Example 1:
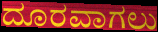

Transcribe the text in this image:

ದೂರವಾಗಲು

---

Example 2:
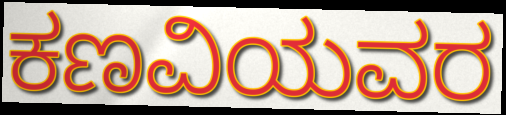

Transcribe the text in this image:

ಕಣವಿಯವರ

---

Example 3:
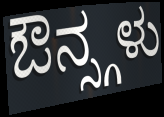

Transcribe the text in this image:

ಔನ್ಸ್ಗಳು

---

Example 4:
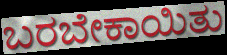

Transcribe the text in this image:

ಬರಬೇಕಾಯಿತು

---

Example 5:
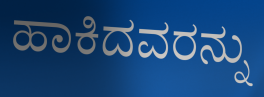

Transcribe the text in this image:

ಹಾಕಿದವರನ್ನು